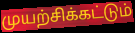
முயற்சிக்கட்டும்